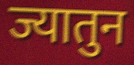
ज्यातुन